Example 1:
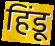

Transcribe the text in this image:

हिंडू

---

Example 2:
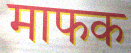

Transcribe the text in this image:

माफक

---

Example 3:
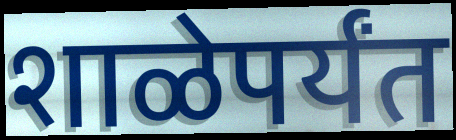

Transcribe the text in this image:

शाळेपर्यंत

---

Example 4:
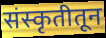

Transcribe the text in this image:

संस्कृतीतून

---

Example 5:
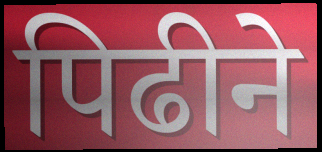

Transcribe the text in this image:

पिढीने